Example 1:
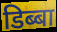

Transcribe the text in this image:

डिब्बा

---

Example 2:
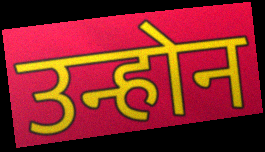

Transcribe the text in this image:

उन्होन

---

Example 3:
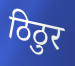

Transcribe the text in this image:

ठिठुर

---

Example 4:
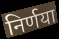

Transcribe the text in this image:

निर्णया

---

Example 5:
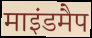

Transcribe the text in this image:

माइंडमैप